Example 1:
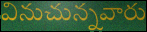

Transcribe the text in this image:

వినుచున్నవారు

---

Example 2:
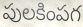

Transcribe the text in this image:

పులకింపగ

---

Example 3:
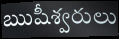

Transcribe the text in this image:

ఋషీశ్వరులు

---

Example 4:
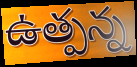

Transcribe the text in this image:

ఉత్పన్న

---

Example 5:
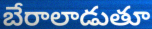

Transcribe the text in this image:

బేరాలాడుతూ